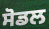
ਸੋਡਲ